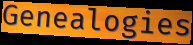
Genealogies